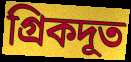
গ্রিকদূত